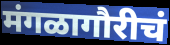
मंगळागौरीचं